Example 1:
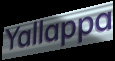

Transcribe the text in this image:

Yallappa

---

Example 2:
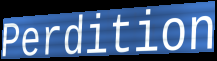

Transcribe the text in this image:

Perdition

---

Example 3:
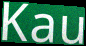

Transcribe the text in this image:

Kau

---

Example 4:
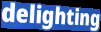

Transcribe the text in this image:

delighting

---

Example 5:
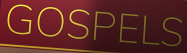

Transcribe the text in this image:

GOSPELS